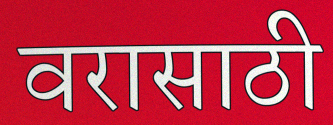
वरासाठी